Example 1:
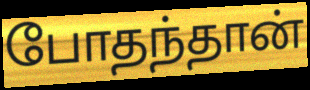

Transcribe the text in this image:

போதந்தான்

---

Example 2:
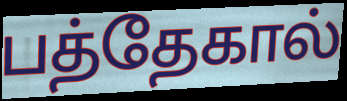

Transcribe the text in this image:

பத்தேகால்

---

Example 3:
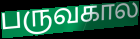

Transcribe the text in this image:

பருவகால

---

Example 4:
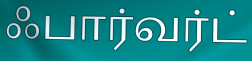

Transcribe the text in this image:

ஃபார்வர்ட்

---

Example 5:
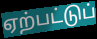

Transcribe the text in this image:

ஏற்பட்டுப்